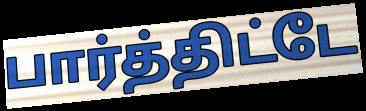
பார்த்திட்டே